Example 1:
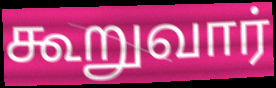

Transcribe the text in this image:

கூறுவார்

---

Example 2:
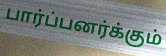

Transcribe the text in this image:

பார்ப்பனர்க்கும்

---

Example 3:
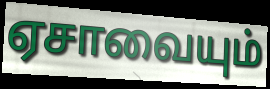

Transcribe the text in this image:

ஏசாவையும்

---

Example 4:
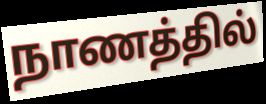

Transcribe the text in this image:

நாணத்தில்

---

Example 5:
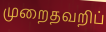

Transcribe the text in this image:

முறைதவறிப்